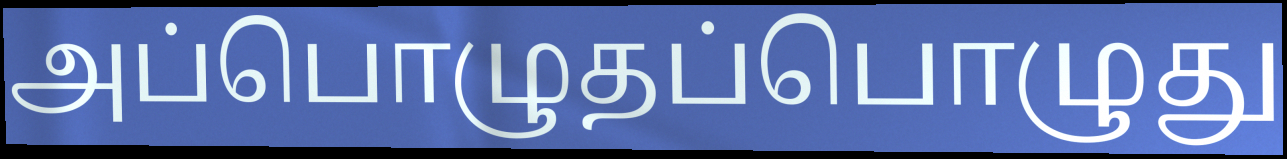
அப்பொழுதப்பொழுது